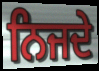
ਨਿਜਦੇ